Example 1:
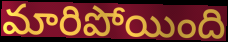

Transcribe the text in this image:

మారిపోయింది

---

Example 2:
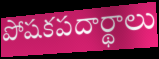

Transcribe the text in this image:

పోషకపదార్థాలు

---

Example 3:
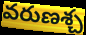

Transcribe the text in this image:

వరుణశ్చ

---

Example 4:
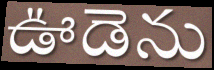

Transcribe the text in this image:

ఊడెను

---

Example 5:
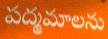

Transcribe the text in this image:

పద్మమాలను